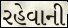
રહેવાની